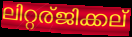
ലിറ്റര്ജിക്കല്